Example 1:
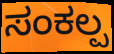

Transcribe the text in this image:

ಸಂಕಲ್ಪ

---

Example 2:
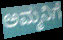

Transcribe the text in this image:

ಅಮ್ಮನಿಗೆ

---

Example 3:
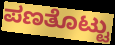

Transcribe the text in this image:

ಪಣತೊಟ್ಟು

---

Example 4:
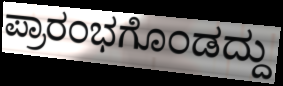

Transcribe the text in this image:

ಪ್ರಾರಂಭಗೊಂಡದ್ದು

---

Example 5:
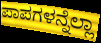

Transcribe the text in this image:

ಪಾಪಗಳನ್ನೆಲ್ಲಾ